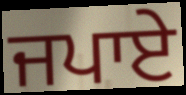
ਜਪਾਏ